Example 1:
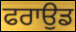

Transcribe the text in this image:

ਫਰਾਉਡ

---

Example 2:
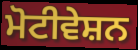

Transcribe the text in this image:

ਮੋਟੀਵੇਸ਼ਨ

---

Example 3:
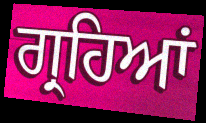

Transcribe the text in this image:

ਗ੍ਰਹਿਆਂ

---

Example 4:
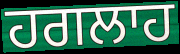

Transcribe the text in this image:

ਹਗਲਾਹ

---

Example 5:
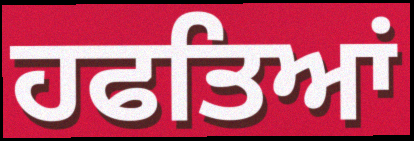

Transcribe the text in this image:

ਹਫਤਿਆਂ